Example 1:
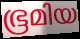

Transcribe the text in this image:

ഭൂമിയ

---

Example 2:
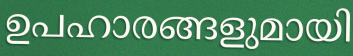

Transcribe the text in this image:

ഉപഹാരങ്ങളുമായി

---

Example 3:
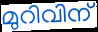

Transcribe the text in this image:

മുറിവിന്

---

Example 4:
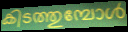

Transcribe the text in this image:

കിടത്തുമ്പോൾ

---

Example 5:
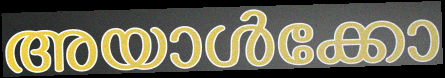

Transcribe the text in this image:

അയാൾക്കോ